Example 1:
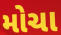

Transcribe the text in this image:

મોચા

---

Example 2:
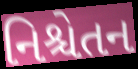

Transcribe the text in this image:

નિશ્ચેતન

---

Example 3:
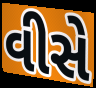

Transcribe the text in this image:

વીસે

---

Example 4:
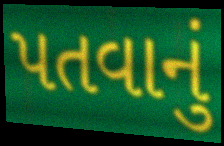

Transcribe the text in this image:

પતવાનું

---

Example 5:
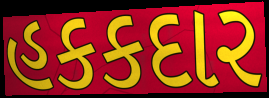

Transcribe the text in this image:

હકકદાર